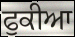
ਫੁਕੀਆ